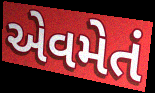
એવમેતં